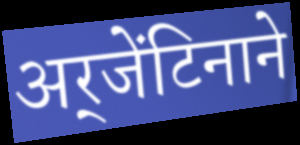
अर्जेंटिनाने